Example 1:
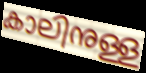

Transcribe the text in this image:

കാലിനുള്ള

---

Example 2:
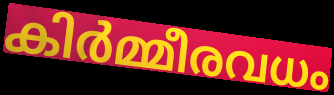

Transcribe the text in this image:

കിർമ്മീരവധം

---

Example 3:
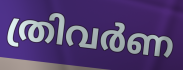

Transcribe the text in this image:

ത്രിവർണ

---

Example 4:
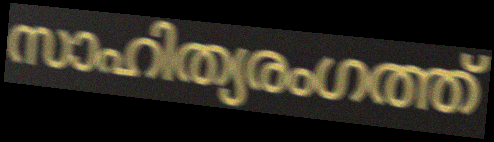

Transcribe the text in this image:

സാഹിത്യരംഗത്ത്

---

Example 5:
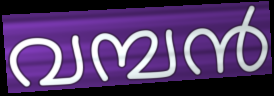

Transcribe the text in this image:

വമ്പൻ